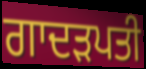
ਗਾਦੜਪਤੀ